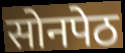
सोनपेठ